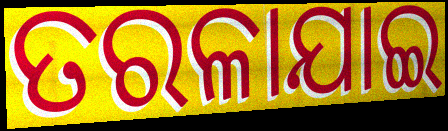
ତରଳାଯାଇ